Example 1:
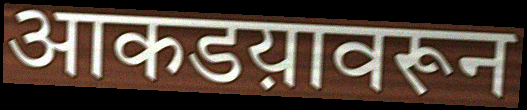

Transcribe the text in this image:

आकडय़ावरून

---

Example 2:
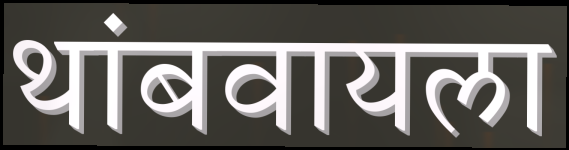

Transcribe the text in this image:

थांबवायला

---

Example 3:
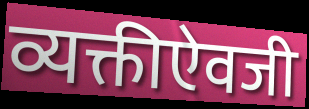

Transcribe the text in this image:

व्यक्तीऐवजी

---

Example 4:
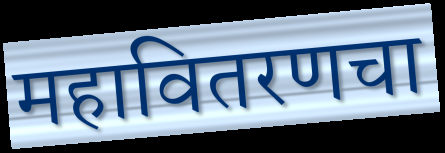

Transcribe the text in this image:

महावितरणचा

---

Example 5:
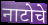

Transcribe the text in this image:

नाटोचे